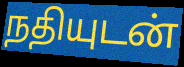
நதியுடன்